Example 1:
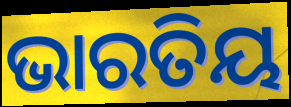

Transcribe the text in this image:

ଭାରତିୟ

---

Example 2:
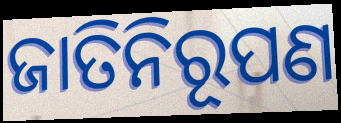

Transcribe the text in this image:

ଜାତିନିରୂପଣ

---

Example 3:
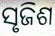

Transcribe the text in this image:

ସୃଜିଶ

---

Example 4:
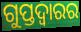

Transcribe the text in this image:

ଗୁପ୍ତଦ୍ୱାରର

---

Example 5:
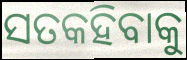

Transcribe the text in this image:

ସତକହିବାକୁ